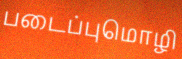
படைப்புமொழி